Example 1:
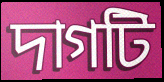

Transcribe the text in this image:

দাগটি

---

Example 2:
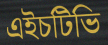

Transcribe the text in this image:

এইচটিভি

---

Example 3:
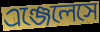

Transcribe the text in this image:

এঞ্জেলেসে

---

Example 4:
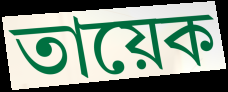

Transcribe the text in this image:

তায়েক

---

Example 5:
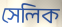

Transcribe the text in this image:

সেলিক